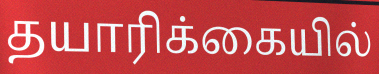
தயாரிக்கையில்